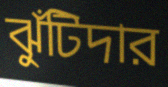
ঝুঁটিদার